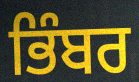
ਭਿੰਬਰ